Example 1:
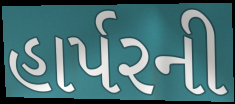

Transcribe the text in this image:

હાર્પરની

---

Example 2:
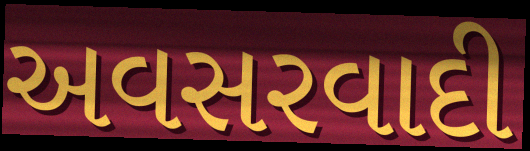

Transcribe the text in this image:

અવસરવાદી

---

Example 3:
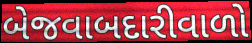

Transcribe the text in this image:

બેજવાબદારીવાળો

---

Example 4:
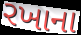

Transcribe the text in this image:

રખાના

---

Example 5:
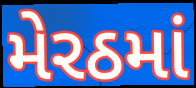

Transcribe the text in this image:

મેરઠમાં